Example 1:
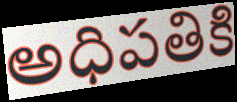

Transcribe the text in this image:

అధిపతికి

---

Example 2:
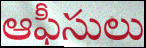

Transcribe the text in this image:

ఆఫీసులు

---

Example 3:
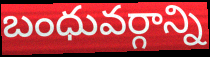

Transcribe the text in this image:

బంధువర్గాన్ని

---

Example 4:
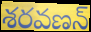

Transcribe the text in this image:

శరవణన్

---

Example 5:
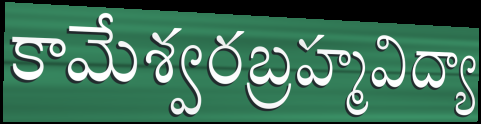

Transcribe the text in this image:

కామేశ్వరబ్రహ్మవిద్యా